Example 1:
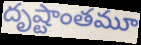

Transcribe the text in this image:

దృష్టాంతమూ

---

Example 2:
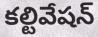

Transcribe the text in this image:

కల్టివేషన్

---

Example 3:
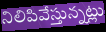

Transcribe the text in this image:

నిలిపివేస్తున్నట్లు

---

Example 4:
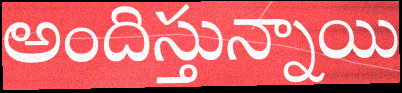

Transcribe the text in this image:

అందిస్తున్నాయి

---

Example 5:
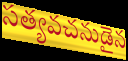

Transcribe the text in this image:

సత్యవచనుడైన